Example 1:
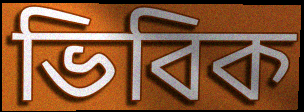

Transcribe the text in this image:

ভিবিক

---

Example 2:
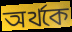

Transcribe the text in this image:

অর্থকে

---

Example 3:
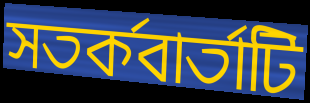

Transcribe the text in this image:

সতর্কবার্তাটি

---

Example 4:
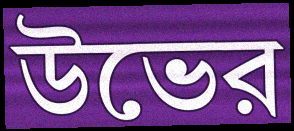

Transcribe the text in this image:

উভের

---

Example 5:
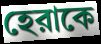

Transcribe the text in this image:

হেরাকে